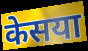
केसया